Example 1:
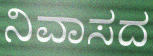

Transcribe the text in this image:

ನಿವಾಸದ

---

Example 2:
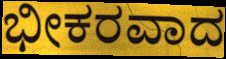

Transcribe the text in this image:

ಭೀಕರವಾದ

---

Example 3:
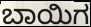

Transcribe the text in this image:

ಬಾಯಿಗ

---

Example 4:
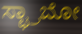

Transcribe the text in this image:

ಸ್ಟ್ರಾಬೋ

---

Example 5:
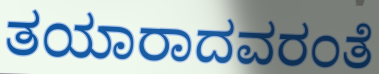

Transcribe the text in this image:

ತಯಾರಾದವರಂತೆ